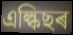
এল্কিছৰ